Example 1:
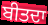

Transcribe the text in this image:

ਬੀਤਦਾ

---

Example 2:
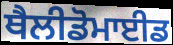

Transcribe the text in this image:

ਥੈਲੀਡੋਮਾਈਡ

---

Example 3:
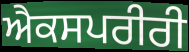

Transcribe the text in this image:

ਐਕਸਪਰੀਰੀ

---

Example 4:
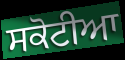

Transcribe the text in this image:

ਸਕੋਟੀਆ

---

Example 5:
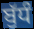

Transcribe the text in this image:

ਬੁੱਧੰ